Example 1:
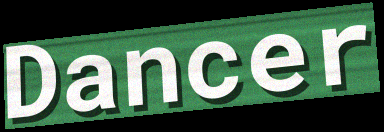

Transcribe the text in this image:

Dancer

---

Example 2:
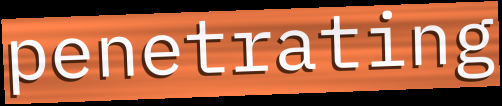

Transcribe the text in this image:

penetrating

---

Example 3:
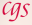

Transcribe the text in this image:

cgs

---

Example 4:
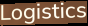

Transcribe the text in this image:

Logistics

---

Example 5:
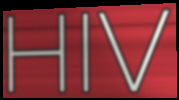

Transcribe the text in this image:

HIV